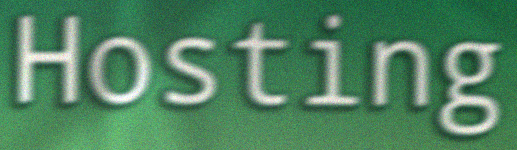
Hosting